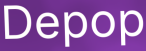
Depop